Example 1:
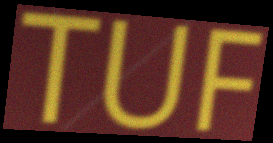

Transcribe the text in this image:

TUF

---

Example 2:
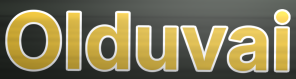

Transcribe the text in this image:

Olduvai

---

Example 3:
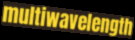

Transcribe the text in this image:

multiwavelength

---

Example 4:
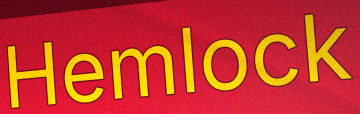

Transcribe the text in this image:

Hemlock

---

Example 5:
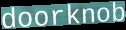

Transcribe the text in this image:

doorknob